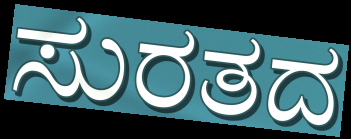
ಸುರತದ